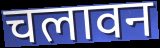
चलावन